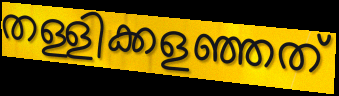
തള്ളിക്കളഞ്ഞത്